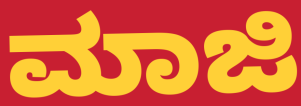
ಮಾಜಿ